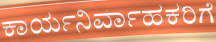
ಕಾರ್ಯನಿರ್ವಾಹಕರಿಗೆ